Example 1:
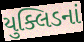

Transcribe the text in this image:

યુક્લિડનાં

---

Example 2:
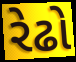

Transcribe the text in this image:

રેઢો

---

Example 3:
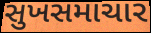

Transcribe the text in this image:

સુખસમાચાર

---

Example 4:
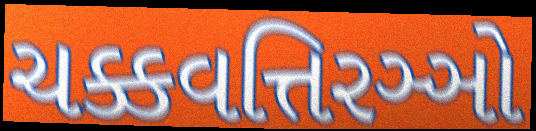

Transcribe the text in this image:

ચક્કવત્તિરઞ્ઞો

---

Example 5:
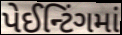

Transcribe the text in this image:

પેઈન્ટિંગમાં